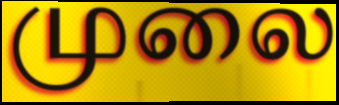
முலை